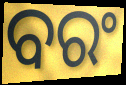
ବରଂ